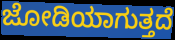
ಜೋಡಿಯಾಗುತ್ತದೆ